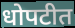
धोपटीत